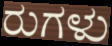
ರುಗಳು